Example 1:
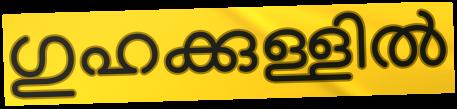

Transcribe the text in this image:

ഗുഹക്കുള്ളിൽ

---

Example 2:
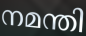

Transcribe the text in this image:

നമന്തി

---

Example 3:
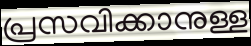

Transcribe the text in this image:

പ്രസവിക്കാനുള്ള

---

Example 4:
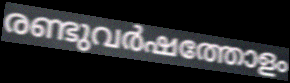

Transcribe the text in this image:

രണ്ടുവർഷത്തോളം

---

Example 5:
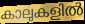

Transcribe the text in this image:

കാലുകളിൽ